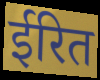
ईरित